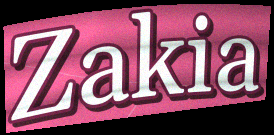
Zakia